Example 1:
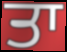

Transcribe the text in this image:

ਤਾ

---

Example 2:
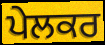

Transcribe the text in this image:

ਪੇਲਕਰ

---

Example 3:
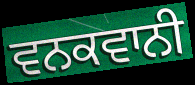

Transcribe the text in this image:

ਵਨਕਵਾਨੀ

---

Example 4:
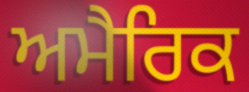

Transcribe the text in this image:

ਅਮੈਰਿਕ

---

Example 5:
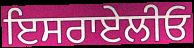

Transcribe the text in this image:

ਇਸਰਾਏਲੀਓ